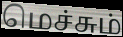
மெச்சும்